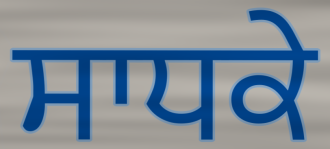
ਸਾਧਕੇ